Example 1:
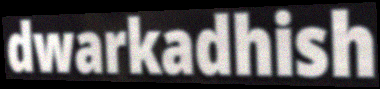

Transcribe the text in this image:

dwarkadhish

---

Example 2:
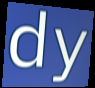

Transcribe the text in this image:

dy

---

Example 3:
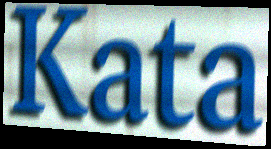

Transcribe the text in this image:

Kata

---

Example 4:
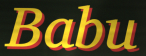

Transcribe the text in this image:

Babu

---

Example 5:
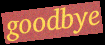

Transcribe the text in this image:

goodbye